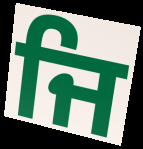
ਜਿ